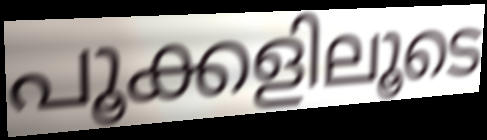
പൂക്കളിലൂടെ